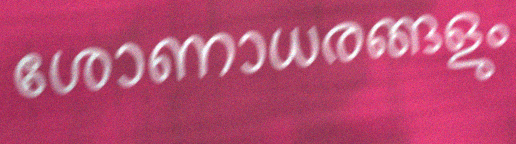
ശോണാധരങ്ങളും